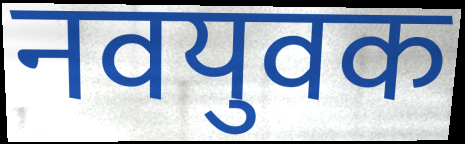
नवयुवक